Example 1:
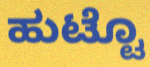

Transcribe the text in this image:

ಹುಟ್ಟೊ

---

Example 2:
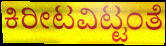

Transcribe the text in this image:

ಕಿರೀಟವಿಟ್ಟಂತೆ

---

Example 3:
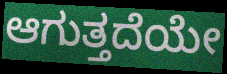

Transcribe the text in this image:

ಆಗುತ್ತದೆಯೇ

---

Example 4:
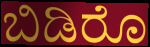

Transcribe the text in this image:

ಬಿಡಿರೊ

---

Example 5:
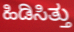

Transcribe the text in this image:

ಹಿಡಿಸಿತ್ತು